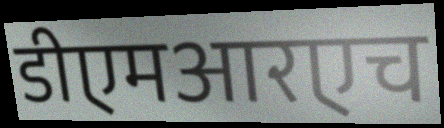
डीएमआरएच